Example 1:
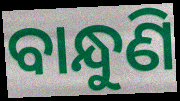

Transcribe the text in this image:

ବାନ୍ଧୁଣି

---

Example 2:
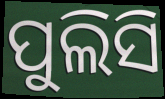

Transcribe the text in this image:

ପୁଲିସି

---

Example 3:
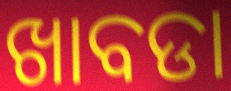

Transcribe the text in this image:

ଖାବଡା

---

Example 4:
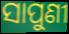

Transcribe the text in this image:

ସାପୁଣୀ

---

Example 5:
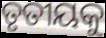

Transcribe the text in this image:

ତୃତୀୟକୁ